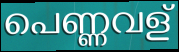
പെണ്ണവള്